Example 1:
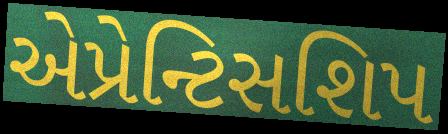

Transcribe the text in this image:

એપ્રેન્ટિસશિપ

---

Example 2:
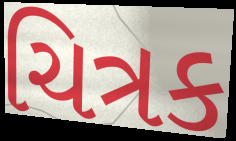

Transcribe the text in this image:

ચિત્રક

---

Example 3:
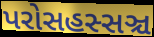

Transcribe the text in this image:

પરોસહસ્સઞ્ચ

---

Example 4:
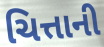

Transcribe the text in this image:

ચિત્તાની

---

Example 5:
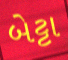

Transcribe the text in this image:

બેટ્ટા